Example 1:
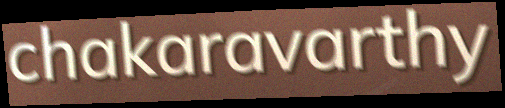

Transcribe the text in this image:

chakaravarthy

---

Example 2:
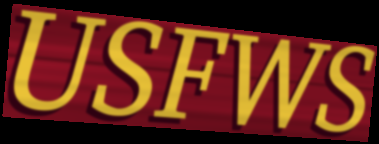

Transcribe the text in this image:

USFWS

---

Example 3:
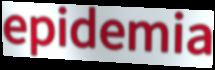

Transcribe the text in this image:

epidemia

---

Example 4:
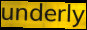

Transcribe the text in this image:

underly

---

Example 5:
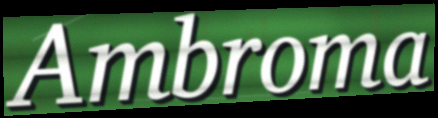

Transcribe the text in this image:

Ambroma